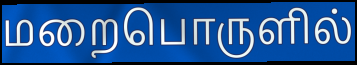
மறைபொருளில்